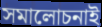
সমালোচনাই